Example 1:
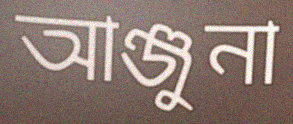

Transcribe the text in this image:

আঞ্জুনা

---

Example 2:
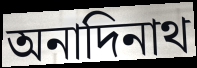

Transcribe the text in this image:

অনাদিনাথ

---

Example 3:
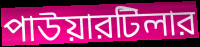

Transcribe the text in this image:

পাউয়ারটিলার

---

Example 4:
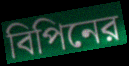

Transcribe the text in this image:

বিপিনের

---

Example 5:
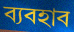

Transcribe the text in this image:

ব্যবহাব